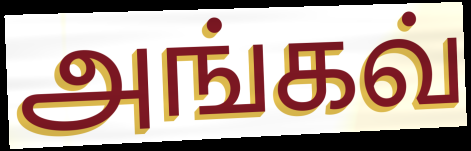
அங்கவ்